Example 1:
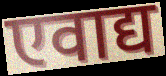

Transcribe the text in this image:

एवाद्य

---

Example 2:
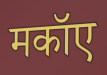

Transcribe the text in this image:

मकॉए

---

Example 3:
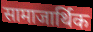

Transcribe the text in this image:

सामाजार्थिक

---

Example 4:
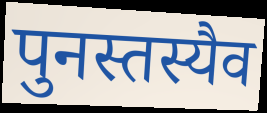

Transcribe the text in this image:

पुनस्तस्यैव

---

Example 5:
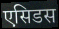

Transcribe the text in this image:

एसिडस